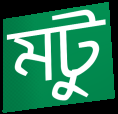
মটু